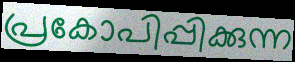
പ്രകോപിപ്പിക്കുന്ന